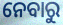
ନେବାରୁ